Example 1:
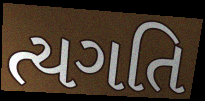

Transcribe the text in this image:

ત્યગતિ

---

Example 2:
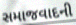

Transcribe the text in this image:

સમાજવાદની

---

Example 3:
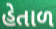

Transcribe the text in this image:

હેતાળ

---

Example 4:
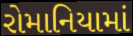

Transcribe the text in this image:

રોમાનિયામાં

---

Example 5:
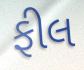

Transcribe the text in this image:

ફીલ